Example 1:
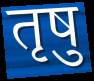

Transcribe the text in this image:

तृषु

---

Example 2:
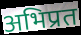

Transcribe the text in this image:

अभिप्रत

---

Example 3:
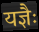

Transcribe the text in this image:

यज्ञैः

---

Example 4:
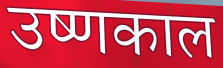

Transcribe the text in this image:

उष्णकाल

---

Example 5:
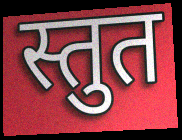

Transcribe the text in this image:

स्तुत